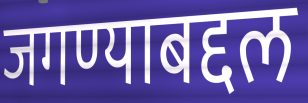
जगण्याबद्दल